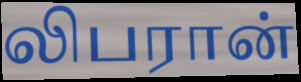
லிபரான்